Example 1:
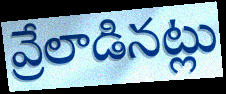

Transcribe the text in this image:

వ్రేలాడినట్లు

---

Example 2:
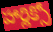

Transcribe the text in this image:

హార్లిక్సో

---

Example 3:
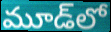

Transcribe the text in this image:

మూడ్‌లో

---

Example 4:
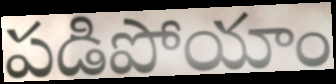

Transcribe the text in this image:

పడిపోయాం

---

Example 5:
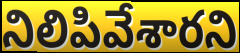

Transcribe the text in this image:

నిలిపివేశారని